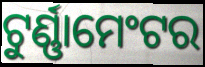
ଟୁର୍ଣ୍ଣାମେଂଟର